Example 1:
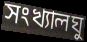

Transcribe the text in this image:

সংখ্যালঘু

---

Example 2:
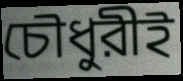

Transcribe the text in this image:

চৌধুরীই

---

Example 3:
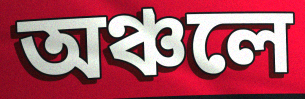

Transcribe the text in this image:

অঞ্চলে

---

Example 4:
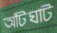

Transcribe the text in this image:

আঁটঘাট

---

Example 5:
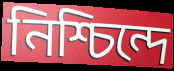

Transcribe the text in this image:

নিশ্চিন্দে